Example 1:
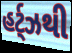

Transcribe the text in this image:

હર્ટ્ઝથી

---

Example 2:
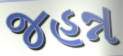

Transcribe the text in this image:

જહન્ન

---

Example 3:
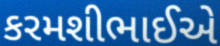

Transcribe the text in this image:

કરમશીભાઈએ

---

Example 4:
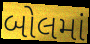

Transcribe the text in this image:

બોલમાં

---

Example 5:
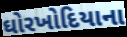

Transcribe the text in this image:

ઘોરખોદિયાના